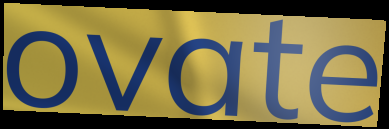
ovate